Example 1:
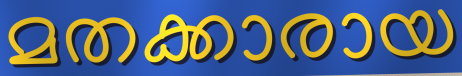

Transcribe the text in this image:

മതക്കാരായ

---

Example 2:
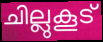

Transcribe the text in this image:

ചില്ലുകൂട്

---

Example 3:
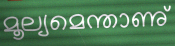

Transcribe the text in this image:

മൂല്യമെന്താണു്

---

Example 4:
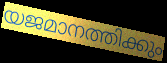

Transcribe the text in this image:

യജമാനത്തിക്കും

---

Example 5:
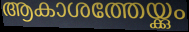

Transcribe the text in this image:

ആകാശത്തേയ്ക്കും